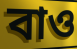
বাও